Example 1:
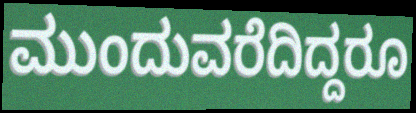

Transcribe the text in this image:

ಮುಂದುವರೆದಿದ್ದರೂ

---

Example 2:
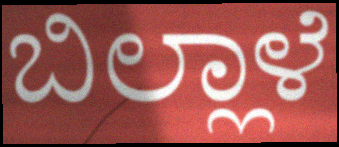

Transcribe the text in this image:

ಬಿಲ್ಲಾಳೆ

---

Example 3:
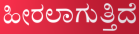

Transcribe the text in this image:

ಹೀರಲಾಗುತ್ತಿದೆ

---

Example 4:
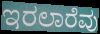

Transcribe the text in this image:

ಇರಲಾರೆವು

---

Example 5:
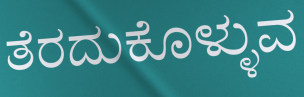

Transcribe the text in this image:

ತೆರದುಕೊಳ್ಳುವ